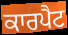
ਕਾਰਪੈਟ